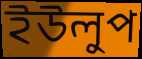
ইউলুপ